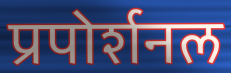
प्रपोर्शनल